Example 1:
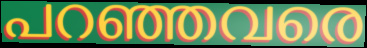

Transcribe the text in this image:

പറഞ്ഞവരെ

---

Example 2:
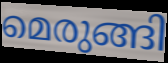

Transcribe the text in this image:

മെരുങ്ങി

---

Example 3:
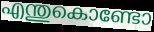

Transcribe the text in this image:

എന്തുകൊണ്ടോ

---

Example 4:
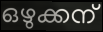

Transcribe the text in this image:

ഒഴുക്കന്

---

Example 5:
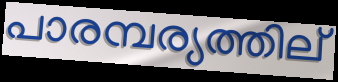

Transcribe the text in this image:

പാരമ്പര്യത്തില്